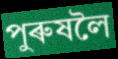
পুৰুষলৈ